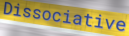
Dissociative